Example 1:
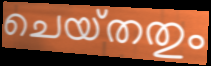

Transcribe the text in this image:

ചെയ്‌തതും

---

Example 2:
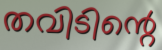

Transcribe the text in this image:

തവിടിന്റെ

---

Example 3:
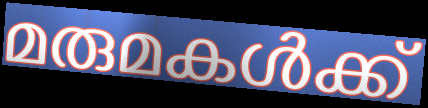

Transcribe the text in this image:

മരുമകൾക്ക്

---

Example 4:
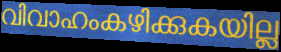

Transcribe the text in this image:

വിവാഹംകഴിക്കുകയില്ല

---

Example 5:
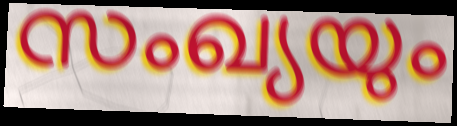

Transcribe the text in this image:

സംഖ്യയും